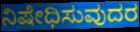
ನಿಷೇಧಿಸುವುದರ